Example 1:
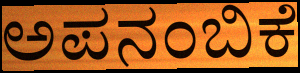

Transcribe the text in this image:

ಅಪನಂಬಿಕೆ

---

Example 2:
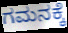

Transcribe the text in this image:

ಗಮನಕ್ಕೆ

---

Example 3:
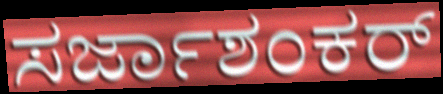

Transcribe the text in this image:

ಸರ್ಜಾಶಂಕರ್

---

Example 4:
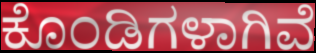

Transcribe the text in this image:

ಕೊಂಡಿಗಳಾಗಿವೆ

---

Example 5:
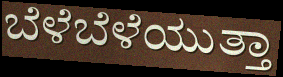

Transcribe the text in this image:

ಬೆಳೆಬೆಳೆಯುತ್ತಾ